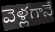
వెళ్లగానే